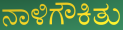
ನಾಳಿಗೌಕಿತು